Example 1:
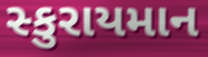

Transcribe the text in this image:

સ્કુરાયમાન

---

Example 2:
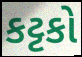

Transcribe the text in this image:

કટ્ટકો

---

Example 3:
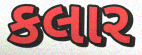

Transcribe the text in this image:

કલાર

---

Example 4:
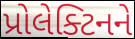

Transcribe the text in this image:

પ્રોલેક્ટિનને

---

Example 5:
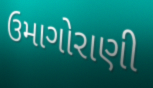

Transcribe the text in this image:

ઉમાગોરાણી